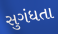
સુગંધતા